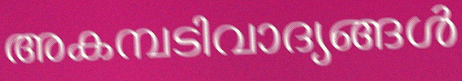
അകമ്പടിവാദ്യങ്ങൾ